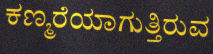
ಕಣ್ಮರೆಯಾಗುತ್ತಿರುವ